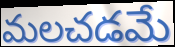
మలచడమే